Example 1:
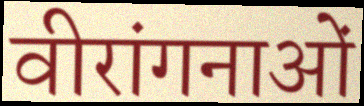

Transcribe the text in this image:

वीरांगनाओं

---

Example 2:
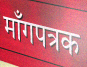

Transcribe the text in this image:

माँगपत्रक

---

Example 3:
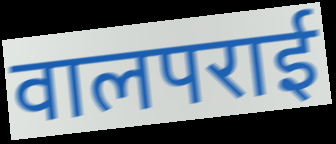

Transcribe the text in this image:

वालपराई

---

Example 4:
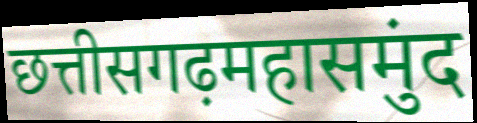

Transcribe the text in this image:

छत्तीसगढ़महासमुंद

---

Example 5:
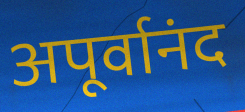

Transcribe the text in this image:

अपूर्वानंद